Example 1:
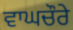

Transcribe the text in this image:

ਵਾਘਚੌਰੇ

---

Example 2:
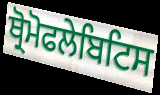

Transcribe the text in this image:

ਥ੍ਰੋਮੋਫਲੇਬਿਟਿਸ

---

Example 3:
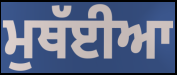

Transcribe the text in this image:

ਮੁਥੱਈਆ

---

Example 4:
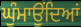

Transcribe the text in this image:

ਘੁੰਮਾਉਂਦਿਆਂ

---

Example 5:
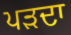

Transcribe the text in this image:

ਪੜਦਾ